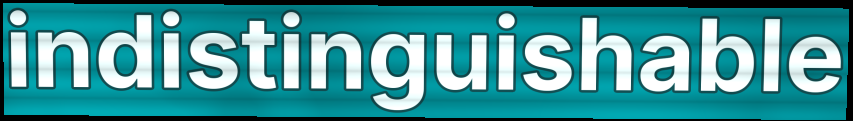
indistinguishable